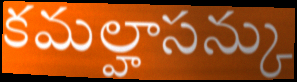
కమల్హాసన్కు